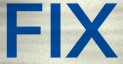
FIX